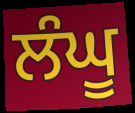
ਲੰਘੂ